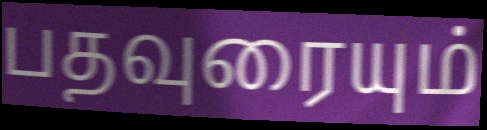
பதவுரையும்